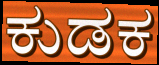
ಕುಡಕ